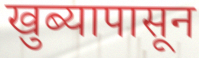
खुब्यापासून